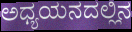
ಅಧ್ಯಯನದಲ್ಲಿನ